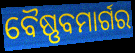
ବୈଷ୍ଣବମାର୍ଗର